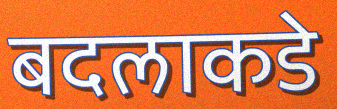
बदलाकडे